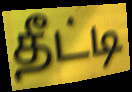
தீட்டி